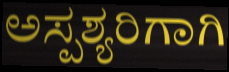
ಅಸ್ಪಶ್ಯರಿಗಾಗಿ